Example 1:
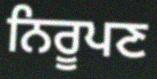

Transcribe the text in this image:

ਨਿਰੂਪਣ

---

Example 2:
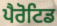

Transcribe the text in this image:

ਪੈਰੋਟਿਡ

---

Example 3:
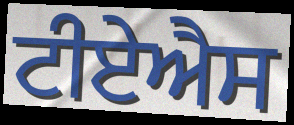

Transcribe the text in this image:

ਟੀਏਐਸ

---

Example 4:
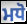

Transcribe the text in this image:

ਮਧੋ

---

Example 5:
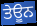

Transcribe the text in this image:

ਤੇਊਨ